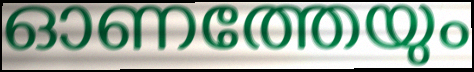
ഓണത്തേയും